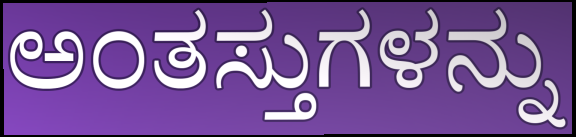
ಅಂತಸ್ತುಗಳನ್ನು